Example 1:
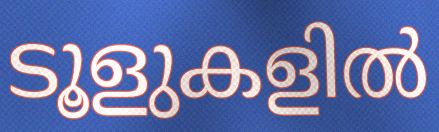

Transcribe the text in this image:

ടൂളുകളിൽ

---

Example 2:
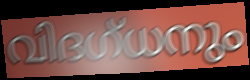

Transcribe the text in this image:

വിദഗ്ധനും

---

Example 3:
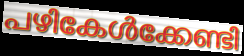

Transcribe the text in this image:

പഴികേൾക്കേണ്ടി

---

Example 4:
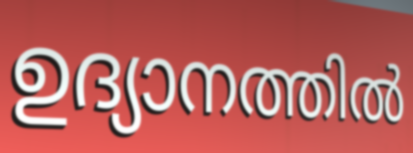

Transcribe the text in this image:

ഉദ്യാനത്തിൽ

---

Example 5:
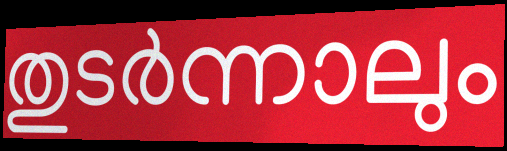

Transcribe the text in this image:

തുടർന്നാലും